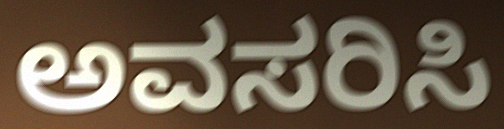
ಅವಸರಿಸಿ